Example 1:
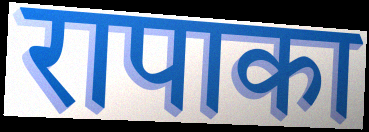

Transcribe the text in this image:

रापाका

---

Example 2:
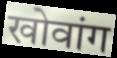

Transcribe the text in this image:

खोवांग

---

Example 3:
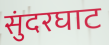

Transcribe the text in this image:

सुंदरघाट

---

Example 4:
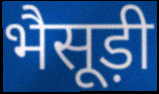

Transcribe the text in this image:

भैसूड़ी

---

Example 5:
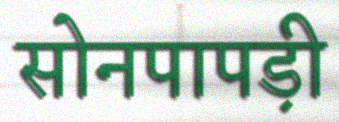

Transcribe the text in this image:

सोनपापड़ी